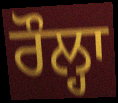
ਰੌਲ੍ਹਾ